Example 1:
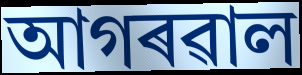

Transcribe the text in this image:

আগৰৱাল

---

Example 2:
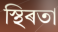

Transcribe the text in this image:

স্থিৰতা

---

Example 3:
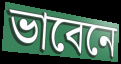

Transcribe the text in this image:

ভাবেনে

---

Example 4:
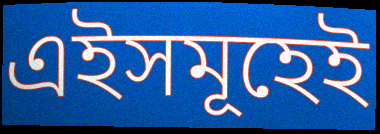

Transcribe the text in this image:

এইসমূহেই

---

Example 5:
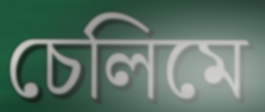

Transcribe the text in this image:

চেলিমে